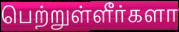
பெற்றுள்ளீர்களா